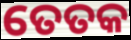
ତେତକ